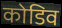
कोडिव